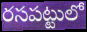
రసపట్టులో